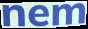
nem